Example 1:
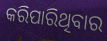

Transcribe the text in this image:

କରିପାରିଥିବାର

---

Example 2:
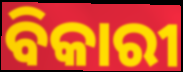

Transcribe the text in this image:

ବିକାରୀ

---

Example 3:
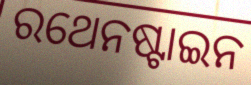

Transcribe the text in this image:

ରଥେନଷ୍ଟାଇନ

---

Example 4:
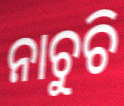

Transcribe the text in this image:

ନାଚୁଚି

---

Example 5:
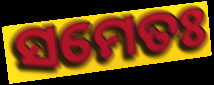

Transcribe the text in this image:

ସମେତଃ